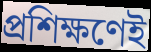
প্রশিক্ষণেই